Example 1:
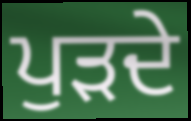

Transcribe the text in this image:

ਪੁੜਦੇ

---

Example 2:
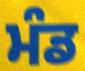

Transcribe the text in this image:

ਮੰਡ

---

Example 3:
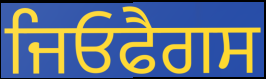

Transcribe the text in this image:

ਜਿਓਫੈਗਸ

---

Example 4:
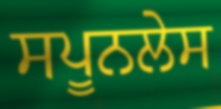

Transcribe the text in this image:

ਸਪੂਨਲੇਸ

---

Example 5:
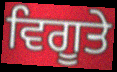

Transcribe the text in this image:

ਵਿਗੂਤੇ